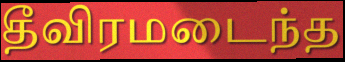
தீவிரமடைந்த